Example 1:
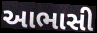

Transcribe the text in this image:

આભાસી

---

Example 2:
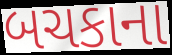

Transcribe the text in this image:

બચકાના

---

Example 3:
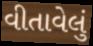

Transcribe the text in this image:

વીતાવેલું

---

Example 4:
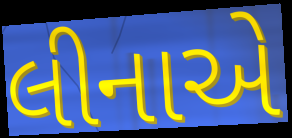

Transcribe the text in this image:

લીનાએ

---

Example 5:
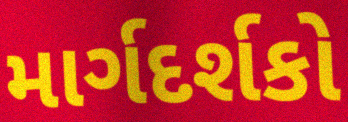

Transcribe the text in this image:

માર્ગદર્શકો